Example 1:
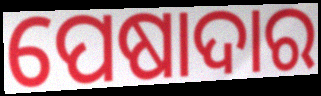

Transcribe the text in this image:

ପେଷାଦାର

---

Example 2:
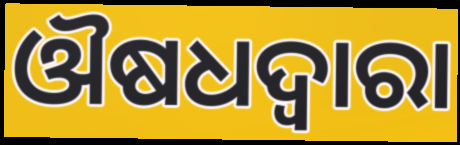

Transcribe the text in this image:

ଔଷଧଦ୍ବାରା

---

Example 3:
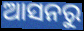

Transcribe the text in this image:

ଆସନରୁ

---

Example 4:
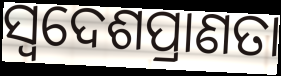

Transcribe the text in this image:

ସ୍ଵଦେଶପ୍ରାଣତା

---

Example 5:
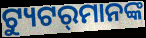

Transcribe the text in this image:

ଟ୍ୟୁଟର୍‍ମାନଙ୍କ